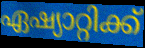
ഏഷ്യാറ്റിക്ക്